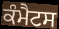
ਕੰਮੈਟਸ